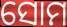
ସୋମ